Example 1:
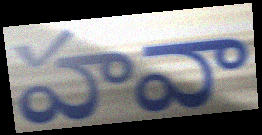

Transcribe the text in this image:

హవా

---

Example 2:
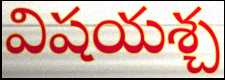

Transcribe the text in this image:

విషయశ్చ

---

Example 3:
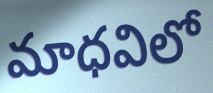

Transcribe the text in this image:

మాధవిలో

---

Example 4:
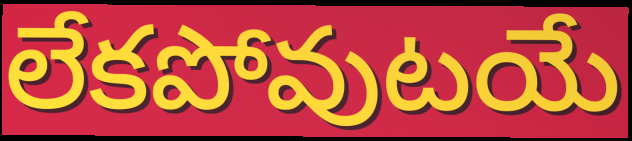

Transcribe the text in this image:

లేకపోవుటయే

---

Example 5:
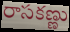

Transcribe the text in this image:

రాసకణ్ణు